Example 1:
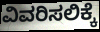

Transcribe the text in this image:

ವಿವರಿಸಲಿಕ್ಕೆ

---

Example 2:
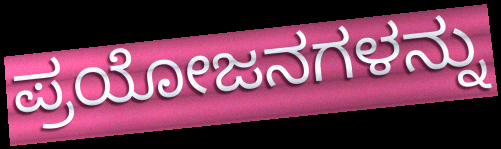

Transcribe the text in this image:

ಪ್ರಯೋಜನಗಳನ್ನು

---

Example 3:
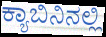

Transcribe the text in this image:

ಕ್ಯಾಬಿನಿನಲ್ಲಿ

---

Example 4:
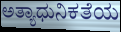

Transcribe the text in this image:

ಅತ್ಯಾಧುನಿಕತೆಯ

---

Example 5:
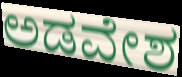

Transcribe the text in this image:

ಅಡವೇಶ